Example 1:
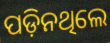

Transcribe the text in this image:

ପଡ଼ିନଥିଲେ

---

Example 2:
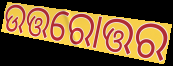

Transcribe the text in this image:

ଉତ୍ତରୋତ୍ତର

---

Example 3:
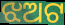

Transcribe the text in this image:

ଝଅଟ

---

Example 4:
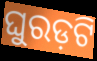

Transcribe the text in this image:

ଘୁରଡ଼ଟି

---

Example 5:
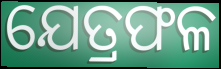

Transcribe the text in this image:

ଯେତ୍ରଫଳ